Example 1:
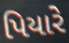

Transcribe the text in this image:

પિયારે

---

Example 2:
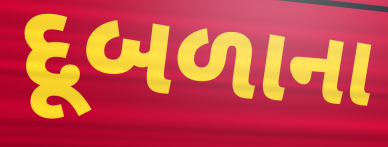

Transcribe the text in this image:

દૂબળાના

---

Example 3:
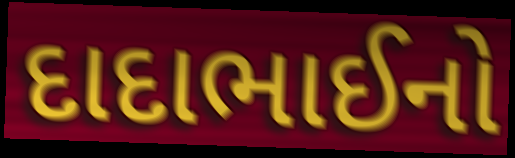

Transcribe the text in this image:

દાદાભાઈનો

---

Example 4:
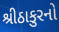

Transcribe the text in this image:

શ્રીઠાકુરનો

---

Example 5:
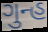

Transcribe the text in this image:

ગુન્હ